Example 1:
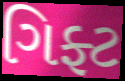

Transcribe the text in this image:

ગિફ્ટ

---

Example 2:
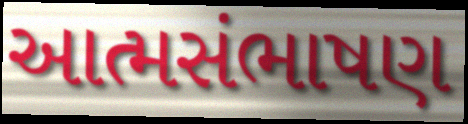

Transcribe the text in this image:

આત્મસંભાષણ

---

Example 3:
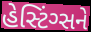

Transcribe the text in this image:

હેસ્ટિંગ્સને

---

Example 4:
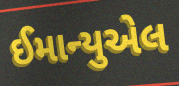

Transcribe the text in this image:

ઈમાન્યુએલ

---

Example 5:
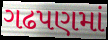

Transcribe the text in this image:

ગઢપણમાં